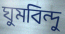
ঘুমবিন্দু